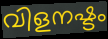
വിളനഷ്ടം